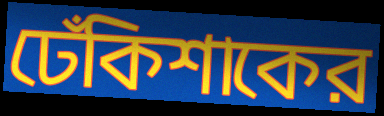
ঢেঁকিশাকের